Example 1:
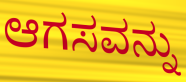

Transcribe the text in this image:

ಆಗಸವನ್ನು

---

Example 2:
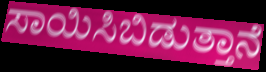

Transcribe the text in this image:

ಸಾಯಿಸಿಬಿಡುತ್ತಾನೆ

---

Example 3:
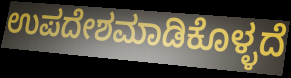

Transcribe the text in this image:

ಉಪದೇಶಮಾಡಿಕೊಳ್ಳದೆ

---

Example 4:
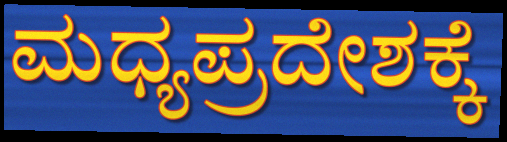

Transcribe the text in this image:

ಮಧ್ಯಪ್ರದೇಶಕ್ಕೆ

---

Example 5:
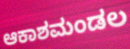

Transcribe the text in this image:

ಆಕಾಶಮಂಡಲ